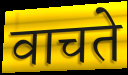
वाचते